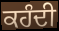
ਕਹੰਦੀ